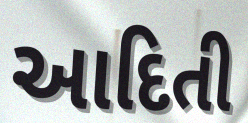
આદિતી